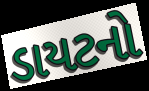
ડાયટનો